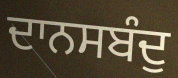
ਦਾਨਸਬੰਦੁ